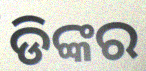
ଡିଙ୍କର